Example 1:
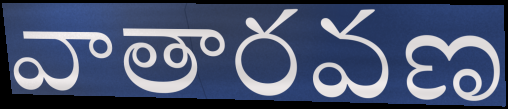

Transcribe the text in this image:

వాతారవణ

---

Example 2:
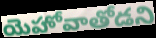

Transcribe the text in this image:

యెహోవాతోడని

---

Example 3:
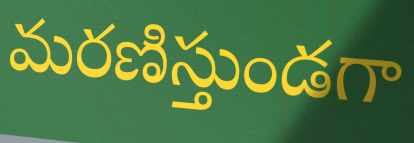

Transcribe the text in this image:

మరణిస్తుండగా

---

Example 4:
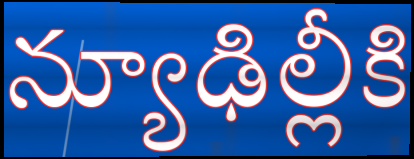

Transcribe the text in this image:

న్యూఢిల్లీకి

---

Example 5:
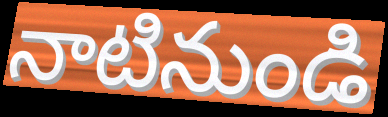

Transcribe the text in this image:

నాటినుండి